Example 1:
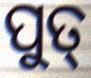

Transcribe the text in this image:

ପୁତ୍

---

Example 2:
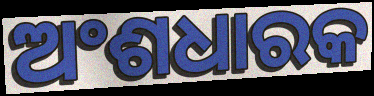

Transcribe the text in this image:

ଅଂଶଧାରକ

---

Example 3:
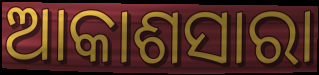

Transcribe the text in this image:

ଆକାଶସାରା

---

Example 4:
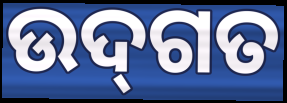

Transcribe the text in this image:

ଉଦ୍‌ଗତ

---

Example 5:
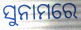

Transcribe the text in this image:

ସୁନାମରେ